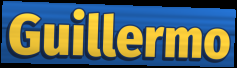
Guillermo